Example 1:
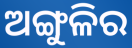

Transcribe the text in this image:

ଅଙ୍ଗୁଳିର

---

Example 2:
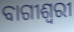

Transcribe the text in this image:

ବାଗୀଶ୍ୱରୀ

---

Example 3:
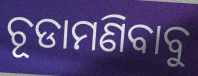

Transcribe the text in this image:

ଚୂଡାମଣିବାବୁ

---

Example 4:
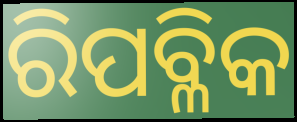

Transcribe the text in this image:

ରିପବ୍ଳିକ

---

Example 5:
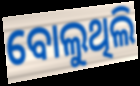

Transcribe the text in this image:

ବୋଲୁଥିଲି